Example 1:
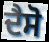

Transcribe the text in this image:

ਦੈਸੋ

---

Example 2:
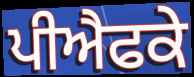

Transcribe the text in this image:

ਪੀਐਫਕੇ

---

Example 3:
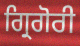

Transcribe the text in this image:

ਗ੍ਰਿਗੋਰੀ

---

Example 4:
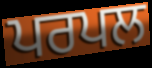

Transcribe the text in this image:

ਪਰਪਲ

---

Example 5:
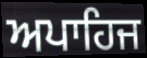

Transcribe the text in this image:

ਅਪਾਹਿਜ